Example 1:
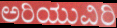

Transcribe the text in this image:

ಅರಿಯುವಿರಿ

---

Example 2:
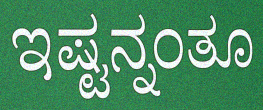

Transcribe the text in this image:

ಇಷ್ಟನ್ನಂತೂ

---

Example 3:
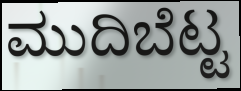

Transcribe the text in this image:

ಮುದಿಬೆಟ್ಟ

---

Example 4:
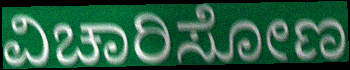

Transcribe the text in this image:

ವಿಚಾರಿಸೋಣ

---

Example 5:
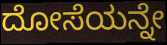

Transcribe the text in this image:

ದೋಸೆಯನ್ನೇ